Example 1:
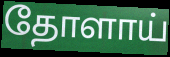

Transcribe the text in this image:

தோளாய்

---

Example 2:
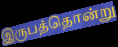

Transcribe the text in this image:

இருபத்தொன்று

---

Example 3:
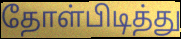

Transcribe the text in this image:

தோள்பிடித்து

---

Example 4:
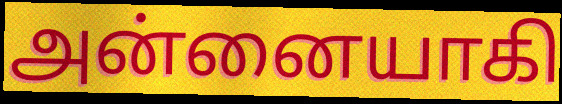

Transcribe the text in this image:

அன்னையாகி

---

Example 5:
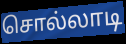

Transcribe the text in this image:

சொல்லாடி